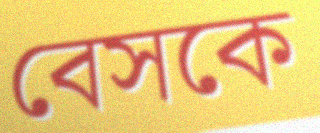
বেসকে